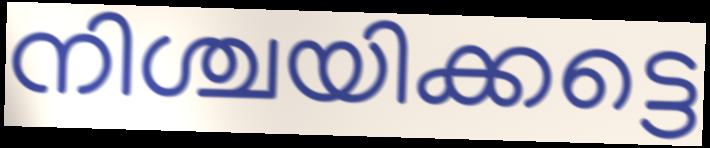
നിശ്ചയിക്കട്ടെ